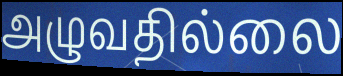
அழுவதில்லை